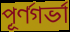
পূর্ণগর্ভা